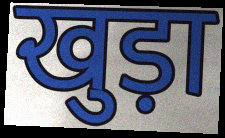
खुड़ा